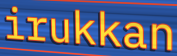
irukkan